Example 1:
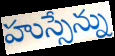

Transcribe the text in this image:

హుస్సేన్ను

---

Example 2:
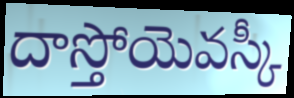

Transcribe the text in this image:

దాస్తోయెవస్కీ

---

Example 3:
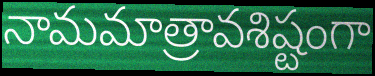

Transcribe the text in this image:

నామమాత్రావశిష్టంగా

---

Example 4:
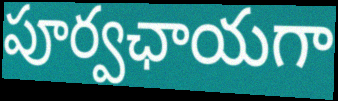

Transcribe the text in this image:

పూర్వఛాయగా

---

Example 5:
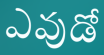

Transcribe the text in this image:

ఎవుడో